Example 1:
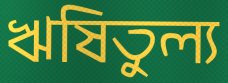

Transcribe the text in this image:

ঋষিতুল্য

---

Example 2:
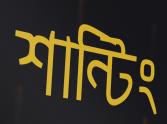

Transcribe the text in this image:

শান্টিং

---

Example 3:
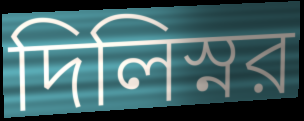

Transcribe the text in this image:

দিলিস্নর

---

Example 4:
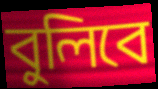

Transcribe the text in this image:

বুলিবে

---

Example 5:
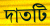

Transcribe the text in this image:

দাতটি